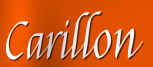
Carillon